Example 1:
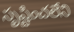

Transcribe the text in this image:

సృష్టించలేని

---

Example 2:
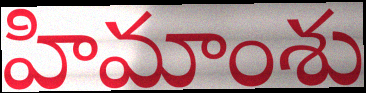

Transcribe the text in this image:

హిమాంశు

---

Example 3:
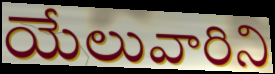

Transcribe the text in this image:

యేలువారిని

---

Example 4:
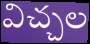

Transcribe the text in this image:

విచ్చల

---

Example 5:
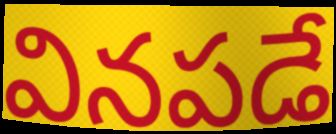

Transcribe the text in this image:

వినపడే